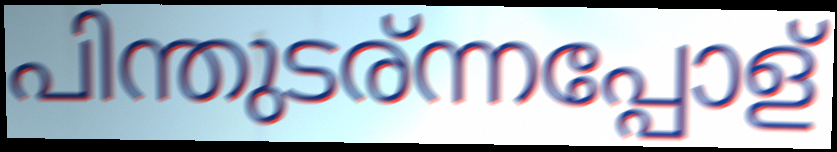
പിന്തുടര്ന്നപ്പോള്